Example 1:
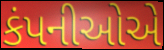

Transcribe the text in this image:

કંપનીઓએ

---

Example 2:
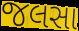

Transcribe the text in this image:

જલસા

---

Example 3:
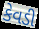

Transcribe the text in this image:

કેવડી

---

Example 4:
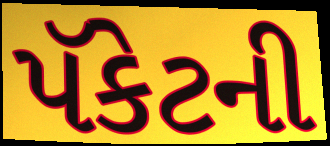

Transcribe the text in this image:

પૅકેટની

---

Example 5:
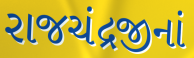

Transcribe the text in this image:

રાજચંદ્રજીનાં